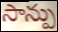
సాన్పు